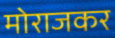
मोराजकर